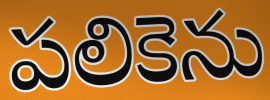
పలికెను